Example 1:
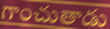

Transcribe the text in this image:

గాంచుతాడు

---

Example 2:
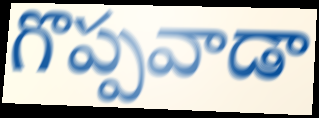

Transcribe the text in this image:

గొప్పవాడా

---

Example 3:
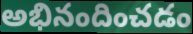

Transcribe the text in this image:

అభినందించడం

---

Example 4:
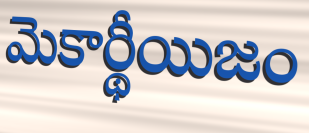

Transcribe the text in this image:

మెకార్థీయిజం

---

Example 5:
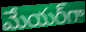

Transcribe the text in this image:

మేయర్‌గా